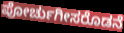
ಪೋರ್ಚುಗೀಸರೊಡನೆ